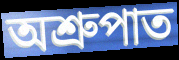
অশ্রুপাত